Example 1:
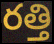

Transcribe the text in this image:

రత్తి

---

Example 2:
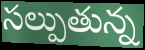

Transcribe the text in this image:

సల్పుతున్న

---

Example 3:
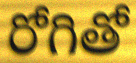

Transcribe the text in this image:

రోగితో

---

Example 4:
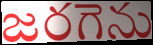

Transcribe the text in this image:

జరగెను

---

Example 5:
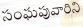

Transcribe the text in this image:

సంఘపువారిని